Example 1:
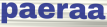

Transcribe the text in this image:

paeraa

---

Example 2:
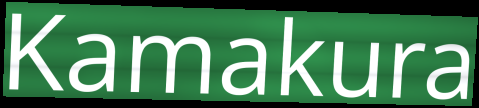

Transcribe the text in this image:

Kamakura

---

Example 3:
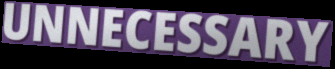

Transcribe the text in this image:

UNNECESSARY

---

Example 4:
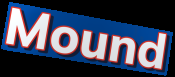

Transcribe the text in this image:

Mound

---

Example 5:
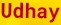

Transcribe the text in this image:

Udhay